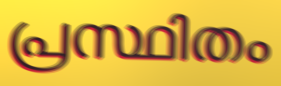
പ്രസ്ഥിതം